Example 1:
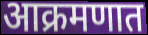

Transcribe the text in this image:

आक्रमणात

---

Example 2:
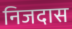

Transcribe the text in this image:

निजदास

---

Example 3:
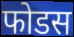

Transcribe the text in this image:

फोडस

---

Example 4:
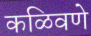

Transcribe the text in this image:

कळिवणे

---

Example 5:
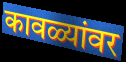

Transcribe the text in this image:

कावळ्यांवर